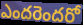
ఎందరెందరో